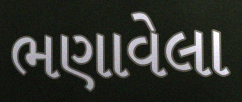
ભણાવેલા